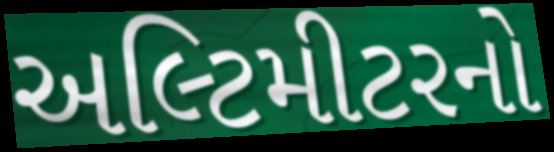
અલ્ટિમીટરનો